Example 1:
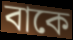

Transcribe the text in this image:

বাকে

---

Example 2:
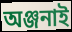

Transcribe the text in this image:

অঞ্জনাই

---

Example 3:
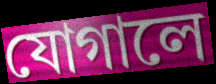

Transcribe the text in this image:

যোগালে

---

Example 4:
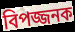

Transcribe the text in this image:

বিপজ্জনক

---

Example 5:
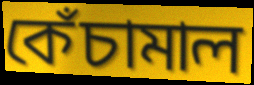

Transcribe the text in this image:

কেঁচামাল